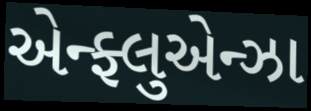
એન્ફ્લુએન્ઝા